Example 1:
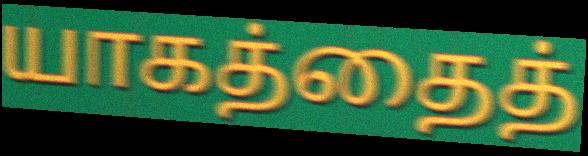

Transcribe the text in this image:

யாகத்தைத்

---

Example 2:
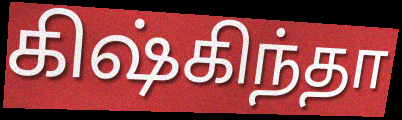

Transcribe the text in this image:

கிஷ்கிந்தா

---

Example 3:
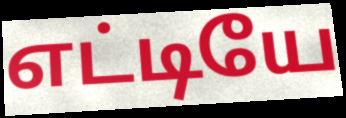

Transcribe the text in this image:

எட்டியே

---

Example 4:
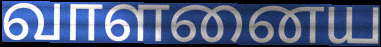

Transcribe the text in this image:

வாளனைய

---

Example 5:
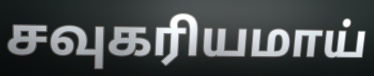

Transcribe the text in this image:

சவுகரியமாய்